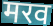
मरव